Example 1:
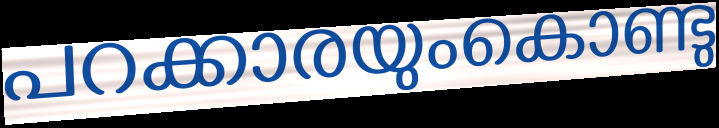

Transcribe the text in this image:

പറക്കാരയുംകൊണ്ടു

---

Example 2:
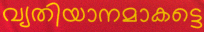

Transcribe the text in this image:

വ്യതിയാനമാകട്ടെ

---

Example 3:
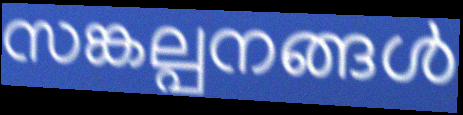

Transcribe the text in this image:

സങ്കല്പനങ്ങൾ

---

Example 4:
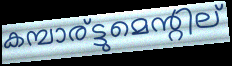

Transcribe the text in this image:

കമ്പാര്ട്ടുമെന്റില്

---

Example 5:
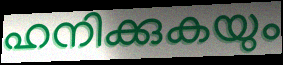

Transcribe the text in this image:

ഹനിക്കുകയും